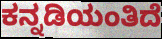
ಕನ್ನಡಿಯಂತಿದೆ